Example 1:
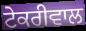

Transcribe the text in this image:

ਟੇਕਰੀਵਾਲ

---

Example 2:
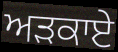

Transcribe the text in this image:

ਅੜਕਾਏ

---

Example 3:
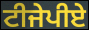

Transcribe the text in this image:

ਟੀਜੇਪੀਏ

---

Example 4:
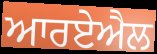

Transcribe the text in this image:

ਆਰਏਐਲ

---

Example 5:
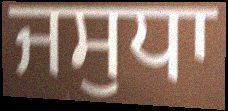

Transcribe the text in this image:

ਜਸੁਧਾ